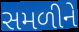
સમળીને